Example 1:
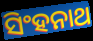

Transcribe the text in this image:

ସିଂହନାଥ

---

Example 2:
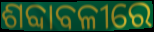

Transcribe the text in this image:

ଶବ୍ଦାବଳୀରେ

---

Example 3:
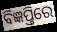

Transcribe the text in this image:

ବିଜ୍ଞପ୍ତିରେ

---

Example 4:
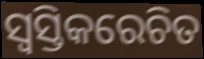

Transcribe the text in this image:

ସ୍ୱସ୍ତିକରେଚିତ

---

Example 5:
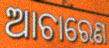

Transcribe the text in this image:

ଆଚାରେଣ